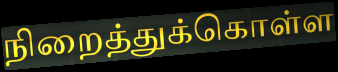
நிறைத்துக்கொள்ள